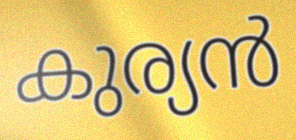
കുര്യൻ